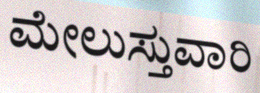
ಮೇಲುಸ್ತುವಾರಿ